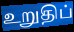
உறுதிப்